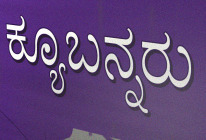
ಕ್ಯೂಬನ್ನರು